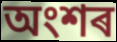
অংশৰ